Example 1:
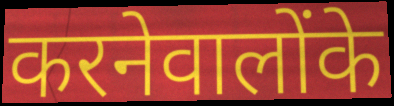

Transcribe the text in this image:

करनेवालोंके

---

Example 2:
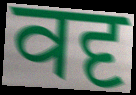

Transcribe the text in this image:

वदृ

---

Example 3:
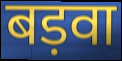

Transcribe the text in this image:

बड़वा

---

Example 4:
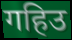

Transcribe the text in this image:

गहिउ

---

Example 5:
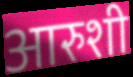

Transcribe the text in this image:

आरुशी